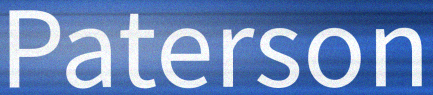
Paterson